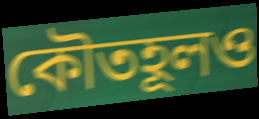
কৌতহূলও